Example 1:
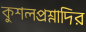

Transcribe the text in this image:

কুশলপ্রশ্নাদির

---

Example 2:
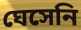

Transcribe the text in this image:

ঘেসেনি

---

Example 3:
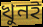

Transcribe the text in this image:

খুনই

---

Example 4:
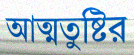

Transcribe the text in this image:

আত্মতুষ্টির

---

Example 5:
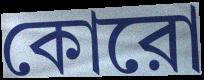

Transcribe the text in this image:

কোরো